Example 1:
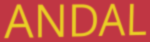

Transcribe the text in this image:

ANDAL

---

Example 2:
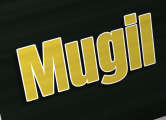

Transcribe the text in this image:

Mugil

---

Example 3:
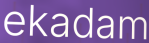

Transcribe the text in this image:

ekadam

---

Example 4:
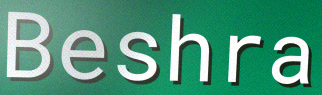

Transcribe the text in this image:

Beshra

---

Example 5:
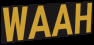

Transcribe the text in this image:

WAAH